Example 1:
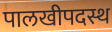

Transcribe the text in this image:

पालखीपदस्थ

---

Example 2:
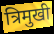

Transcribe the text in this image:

त्रिमुखी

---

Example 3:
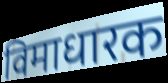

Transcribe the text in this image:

विमाधारक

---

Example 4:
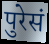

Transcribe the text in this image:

पुरेसं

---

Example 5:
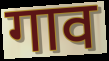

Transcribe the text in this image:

गाव